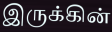
இருக்கின்